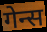
गेन्स